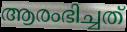
ആരംഭിച്ചത്